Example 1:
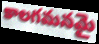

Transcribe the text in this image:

కాలగమనమై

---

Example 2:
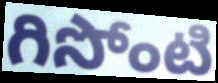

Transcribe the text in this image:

గిసోంటి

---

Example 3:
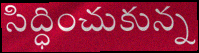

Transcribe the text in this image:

సిద్ధించుకున్న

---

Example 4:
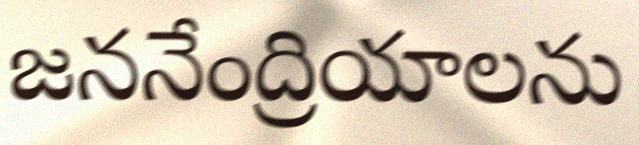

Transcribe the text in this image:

జననేంద్రియాలను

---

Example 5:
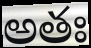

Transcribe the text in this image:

అతః